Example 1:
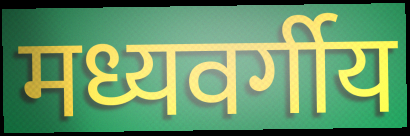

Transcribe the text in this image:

मध्यवर्गीय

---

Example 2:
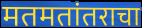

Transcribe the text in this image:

मतमतांतराचा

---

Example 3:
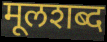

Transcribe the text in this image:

मूलशब्द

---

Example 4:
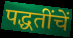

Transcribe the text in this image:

पद्धतींचें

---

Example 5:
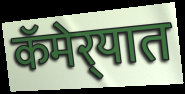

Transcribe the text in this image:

कॅमेर्‍यात